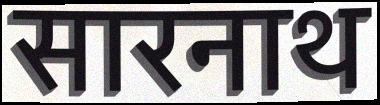
सारनाथ